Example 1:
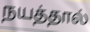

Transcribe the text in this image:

நயத்தால்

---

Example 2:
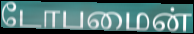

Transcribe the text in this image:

டோபமைன்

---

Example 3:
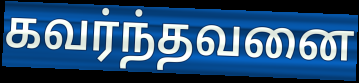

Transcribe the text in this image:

கவர்ந்தவனை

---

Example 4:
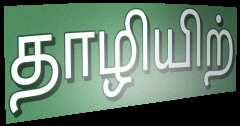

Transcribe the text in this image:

தாழியிற்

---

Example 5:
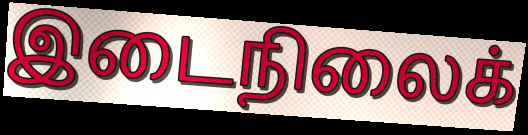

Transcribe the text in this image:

இடைநிலைக்